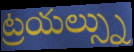
ట్రయల్స్ను